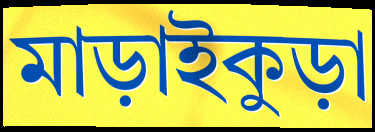
মাড়াইকুড়া